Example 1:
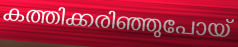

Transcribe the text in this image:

കത്തിക്കരിഞ്ഞുപോയ്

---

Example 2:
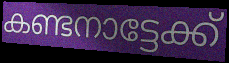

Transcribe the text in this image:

കണ്ടനാട്ടേക്ക്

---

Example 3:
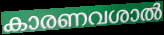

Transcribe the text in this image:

കാരണവശാൽ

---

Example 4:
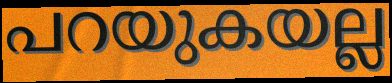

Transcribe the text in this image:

പറയുകയല്ല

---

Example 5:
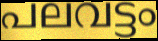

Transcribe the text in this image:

പലവട്ടം